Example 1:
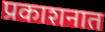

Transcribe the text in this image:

प्रकाशनात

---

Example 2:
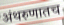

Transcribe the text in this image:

अंथरुणातच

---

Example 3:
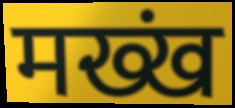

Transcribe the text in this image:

मख्खं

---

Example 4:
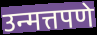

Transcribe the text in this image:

उन्मत्तपणे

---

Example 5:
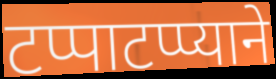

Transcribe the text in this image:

टप्पाटप्प्याने